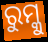
ରୁମ୍କୁ